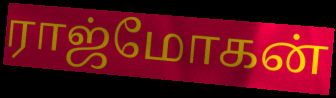
ராஜ்மோகன்